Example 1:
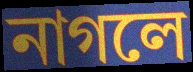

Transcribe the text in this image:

নাগলে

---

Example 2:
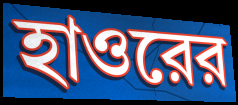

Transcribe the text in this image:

হাওরের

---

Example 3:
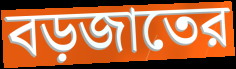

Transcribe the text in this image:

বড়জাতের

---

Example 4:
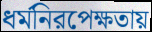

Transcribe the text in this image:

ধর্মনিরপেক্ষতায়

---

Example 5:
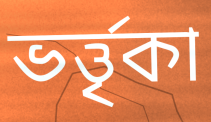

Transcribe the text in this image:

ভর্ত্তৃকা